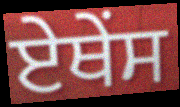
ਏਥੇੰਸ